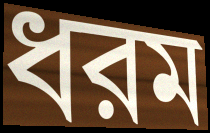
ধরম